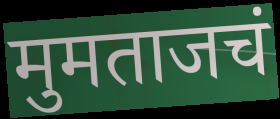
मुमताजचं